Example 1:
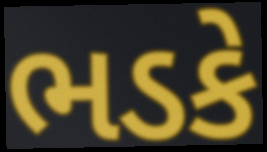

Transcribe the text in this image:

ભડકે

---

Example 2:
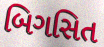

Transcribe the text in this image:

બિગસિત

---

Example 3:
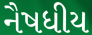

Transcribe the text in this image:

નૈષધીય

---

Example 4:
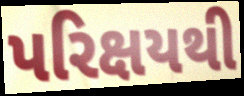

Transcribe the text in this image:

પરિક્ષયથી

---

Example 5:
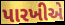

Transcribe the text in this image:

પારખીએ